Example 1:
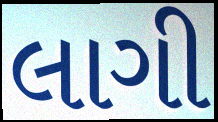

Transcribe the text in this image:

લાગી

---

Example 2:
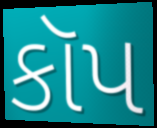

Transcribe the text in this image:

કૉપ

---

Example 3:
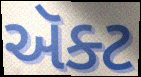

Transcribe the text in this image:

ઍૅક્ટ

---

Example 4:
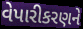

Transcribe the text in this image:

વેપારીકરણને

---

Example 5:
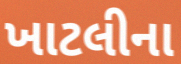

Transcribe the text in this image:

ખાટલીના